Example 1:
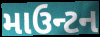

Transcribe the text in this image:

માઉન્ટન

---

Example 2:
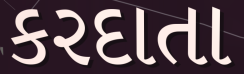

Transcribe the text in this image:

કરદાતા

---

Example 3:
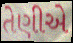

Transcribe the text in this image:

તેણીએ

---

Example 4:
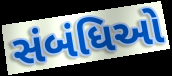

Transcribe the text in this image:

સંબંધિઓ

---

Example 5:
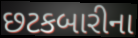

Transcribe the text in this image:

છટકબારીના